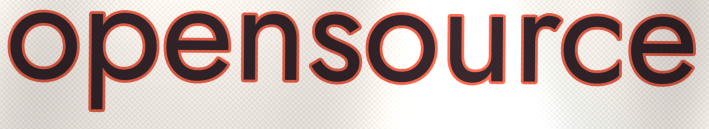
opensource